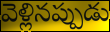
వెళ్లినప్పుడు